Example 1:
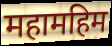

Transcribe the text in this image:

महामहिम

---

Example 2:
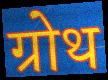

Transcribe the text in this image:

ग्रोथ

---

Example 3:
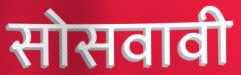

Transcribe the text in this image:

सोसवावी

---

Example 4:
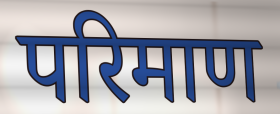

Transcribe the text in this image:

परिमाण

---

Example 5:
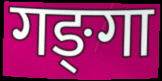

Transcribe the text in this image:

गङ्‍गा